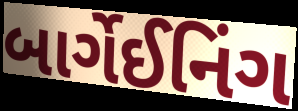
બાર્ગેઈનિંગ